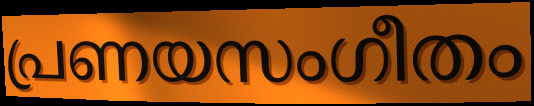
പ്രണയസംഗീതം